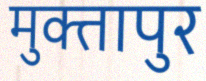
मुक्तापुर